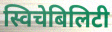
स्विचेबिलिटी